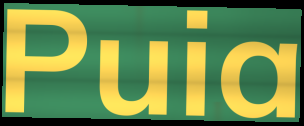
Puia